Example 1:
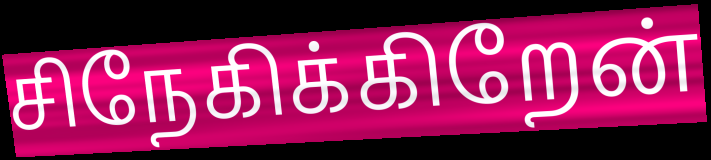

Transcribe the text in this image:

சிநேகிக்கிறேன்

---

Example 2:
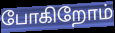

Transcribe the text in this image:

போகிறோம்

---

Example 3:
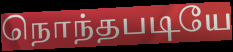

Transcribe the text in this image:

நொந்தபடியே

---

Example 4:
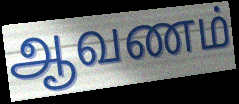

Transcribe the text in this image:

ஆவணம்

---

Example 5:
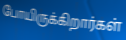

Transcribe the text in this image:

போயிருக்கிறார்கள்